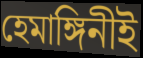
হেমাঙ্গিনীই